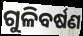
ଗୁଳିବର୍ଷଣ